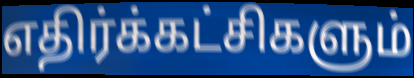
எதிர்க்கட்சிகளும்